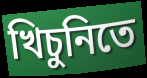
খিচুনিতে